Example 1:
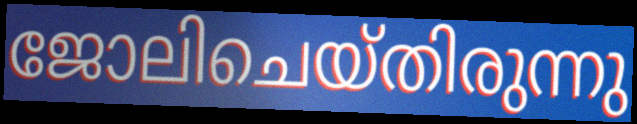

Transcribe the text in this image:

ജോലിചെയ്തിരുന്നു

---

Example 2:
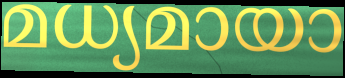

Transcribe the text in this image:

മധ്യമായാ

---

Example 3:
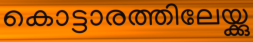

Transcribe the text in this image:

കൊട്ടാരത്തിലേയ്ക്കു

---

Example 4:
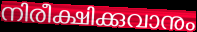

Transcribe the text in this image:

നിരീക്ഷിക്കുവാനും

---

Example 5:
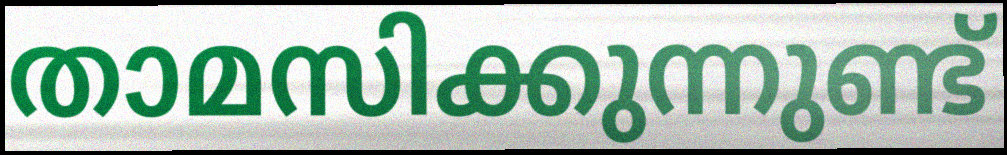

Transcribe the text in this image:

താമസിക്കുന്നുണ്ട്